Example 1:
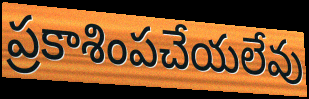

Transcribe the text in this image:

ప్రకాశింపచేయలేవు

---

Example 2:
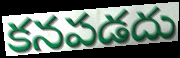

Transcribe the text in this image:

కనపడదు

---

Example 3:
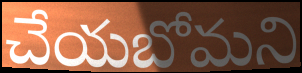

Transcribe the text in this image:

చేయబోమని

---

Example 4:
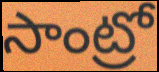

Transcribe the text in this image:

సాంట్రో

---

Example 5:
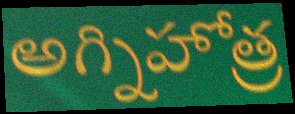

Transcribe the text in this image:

అగ్నిహోత్ర